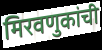
मिरवणुकांची